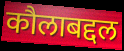
कौलाबद्दल